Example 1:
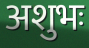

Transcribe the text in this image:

अशुभः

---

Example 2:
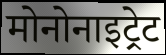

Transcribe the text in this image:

मोनोनाइट्रेट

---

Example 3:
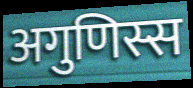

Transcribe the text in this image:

अगुणिस्स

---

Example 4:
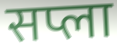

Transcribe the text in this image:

सप्ला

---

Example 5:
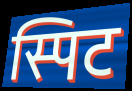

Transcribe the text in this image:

स्पिट